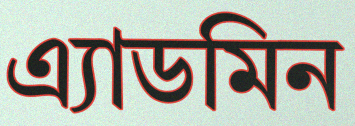
এ্যাডমিন